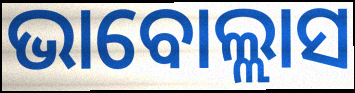
ଭାବୋଲ୍ଲାସ